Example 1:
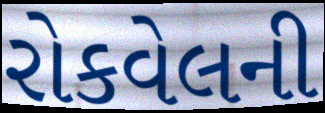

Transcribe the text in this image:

રોકવેલની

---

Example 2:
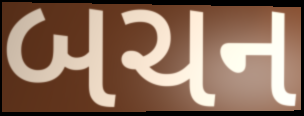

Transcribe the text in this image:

બચન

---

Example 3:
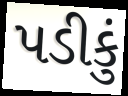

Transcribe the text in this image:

પડીકું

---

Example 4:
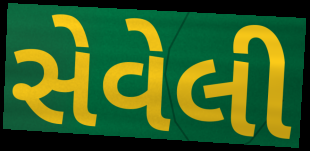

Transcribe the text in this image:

સેવેલી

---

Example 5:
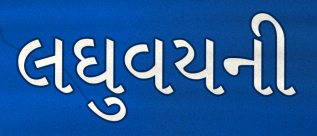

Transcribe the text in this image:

લઘુવયની